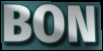
BON